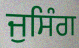
ਜੁਸਿੰਗ